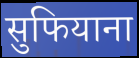
सुफियाना